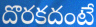
దొరకదంటే